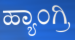
ಹ್ಯಾಂಗ್ರಿ